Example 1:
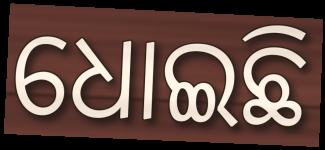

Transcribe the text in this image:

ଧୋଇଛି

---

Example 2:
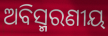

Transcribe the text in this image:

ଅବିସ୍ମରଣୀୟ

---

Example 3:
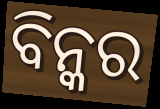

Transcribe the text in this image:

ବିନ୍କର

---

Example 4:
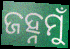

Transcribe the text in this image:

ଜହ୍ନମୁଁ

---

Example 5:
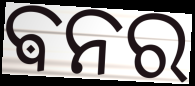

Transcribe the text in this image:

ଵନର